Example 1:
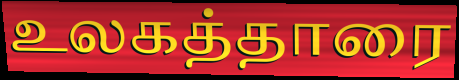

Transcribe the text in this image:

உலகத்தாரை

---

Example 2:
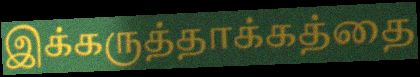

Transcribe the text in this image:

இக்கருத்தாக்கத்தை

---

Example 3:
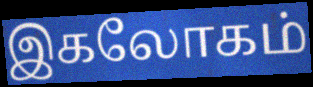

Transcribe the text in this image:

இகலோகம்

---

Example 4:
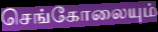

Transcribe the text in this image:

செங்கோலையும்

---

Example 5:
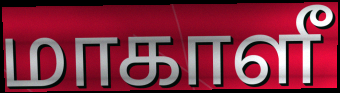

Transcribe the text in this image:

மாகாளீ